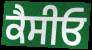
ਕੈਸੀਓ